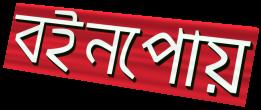
বইনপোয়